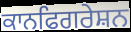
ਕਾਨਫਿਗਰੇਸ਼ਨ